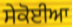
ਸੇਕੋਈਆ